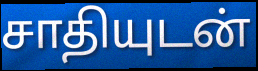
சாதியுடன்